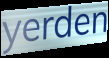
yerden